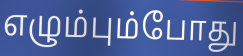
எழும்பும்போது